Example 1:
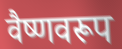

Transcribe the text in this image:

वैष्णवरूप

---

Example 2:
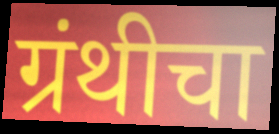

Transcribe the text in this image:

ग्रंथीचा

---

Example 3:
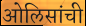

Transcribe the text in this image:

ओलिसांची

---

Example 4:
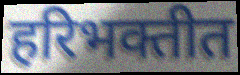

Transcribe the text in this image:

हरिभक्तीत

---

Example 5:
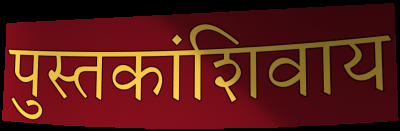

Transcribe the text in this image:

पुस्तकांशिवाय